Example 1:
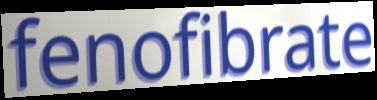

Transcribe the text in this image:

fenofibrate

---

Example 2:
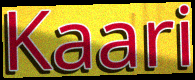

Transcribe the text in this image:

Kaari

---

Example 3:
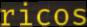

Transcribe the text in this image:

ricos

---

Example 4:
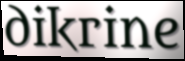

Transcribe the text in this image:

dikrine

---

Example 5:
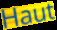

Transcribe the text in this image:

Haut